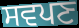
ਸਵਪਣ